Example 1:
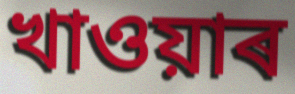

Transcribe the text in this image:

খাওয়াৰ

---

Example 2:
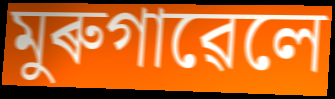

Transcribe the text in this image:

মুৰুগাৱেলে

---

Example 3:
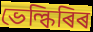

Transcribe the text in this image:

ভেল্কিৰিৰ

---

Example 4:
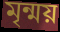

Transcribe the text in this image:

মৃন্ময়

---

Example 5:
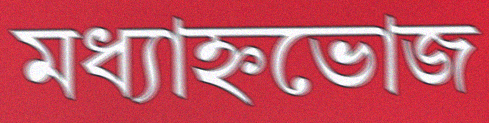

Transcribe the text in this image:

মধ্যাহ্নভোজ